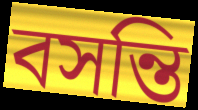
বসন্তি